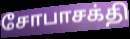
சோபாசக்தி